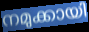
നമുക്കായി